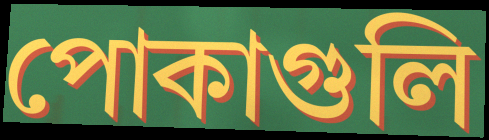
পোকাগুলি